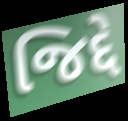
જિદ્દે